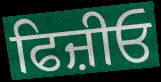
ਫਿਜ਼ੀਓ